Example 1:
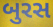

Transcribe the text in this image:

બુરસ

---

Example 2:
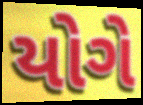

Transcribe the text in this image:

યોગે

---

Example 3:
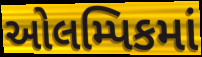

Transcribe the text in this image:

ઓલમ્પિકમાં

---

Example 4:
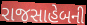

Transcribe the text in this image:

રાજસાહેબની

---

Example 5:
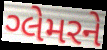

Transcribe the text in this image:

ગ્લેમરને